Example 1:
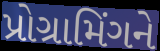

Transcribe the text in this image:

પ્રોગ્રામિંગને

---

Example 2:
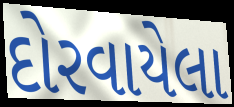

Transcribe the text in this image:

દોરવાયેલા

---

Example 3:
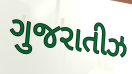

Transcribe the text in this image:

ગુજરાતીઝ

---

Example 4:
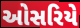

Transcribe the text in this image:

ઓસરિયે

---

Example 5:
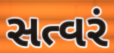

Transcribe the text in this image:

સત્વરં